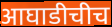
आघाडीचीच